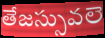
తేజస్సువలె